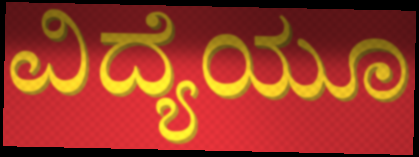
ವಿದ್ಯೆಯೂ